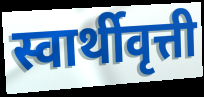
स्वार्थीवृत्ती